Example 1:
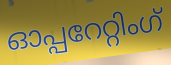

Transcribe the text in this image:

ഓപ്പറേറ്റിംഗ്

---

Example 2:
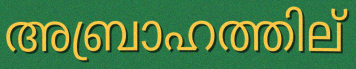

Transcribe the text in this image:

അബ്രാഹത്തില്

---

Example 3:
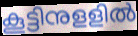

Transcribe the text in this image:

കൂട്ടിനുളളിൽ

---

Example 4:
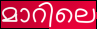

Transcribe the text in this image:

മാറിലെ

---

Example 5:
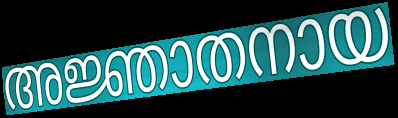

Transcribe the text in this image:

അജ്ഞാതനായ